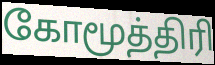
கோமூத்திரி